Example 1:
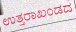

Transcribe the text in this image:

ಉತ್ತರಾಖಂಡದ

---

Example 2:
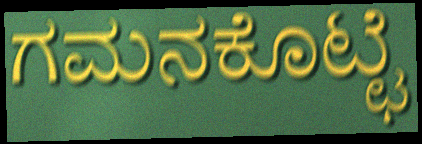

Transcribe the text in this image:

ಗಮನಕೊಟ್ಟೆ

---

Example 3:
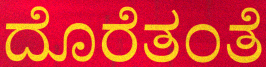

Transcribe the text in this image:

ದೊರೆತಂತೆ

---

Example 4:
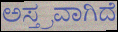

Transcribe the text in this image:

ಅಸ್ತ್ರವಾಗಿದೆ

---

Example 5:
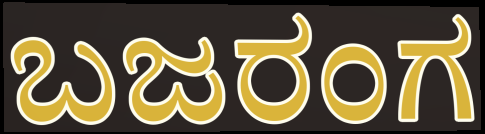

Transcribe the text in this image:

ಬಜರಂಗ